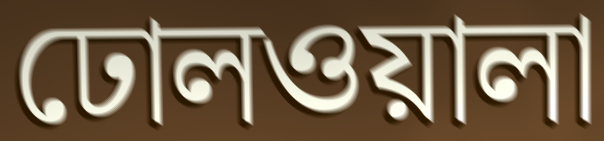
ঢোলওয়ালা